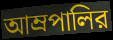
আম্রপালির